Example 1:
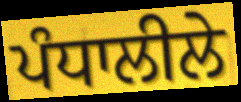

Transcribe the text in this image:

ਪੰਧਾਲੀਲੇ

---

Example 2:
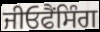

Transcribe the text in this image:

ਜੀਓਫੈਂਸਿੰਗ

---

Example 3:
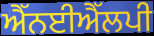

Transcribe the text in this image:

ਐੱਨਈਐੱਲਪੀ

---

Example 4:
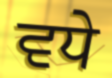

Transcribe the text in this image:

ਵਧੇ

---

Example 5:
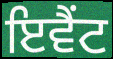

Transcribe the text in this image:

ਇਵੈਂਟ